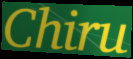
Chiru